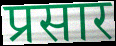
प्रसार